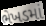
ભેખડમાં